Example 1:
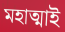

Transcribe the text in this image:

মহাত্মাই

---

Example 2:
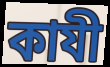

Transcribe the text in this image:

কাযী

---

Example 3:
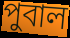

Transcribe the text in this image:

পুবাল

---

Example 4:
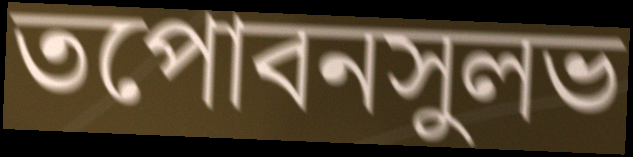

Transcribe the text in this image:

তপোবনসুলভ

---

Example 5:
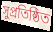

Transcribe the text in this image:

সুপ্রতিষ্ঠিত